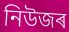
নিউজৰ